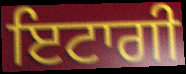
ਇਟਾਗੀ